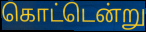
கொட்டென்று